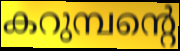
കറുമ്പന്റെ